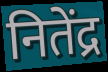
नितेंद्र